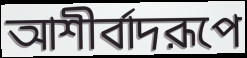
আশীর্বাদরূপে